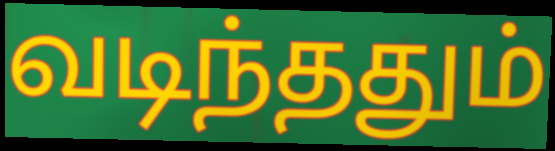
வடிந்ததும்